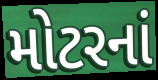
મોટરનાં